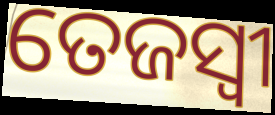
ତେଜସ୍ବୀ